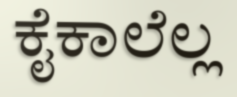
ಕೈಕಾಲೆಲ್ಲ